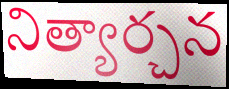
నిత్యార్చన